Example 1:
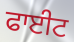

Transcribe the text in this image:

ਫਾਈਟ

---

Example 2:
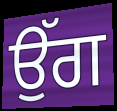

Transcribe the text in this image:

ਉੱਗ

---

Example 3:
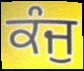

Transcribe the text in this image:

ਕੰਜੁ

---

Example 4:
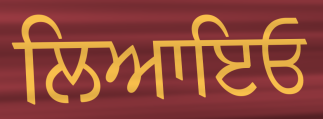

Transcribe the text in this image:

ਲਿਆਇਓ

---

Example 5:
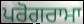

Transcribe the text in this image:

ਪਰੋਗਰਾਮਾ